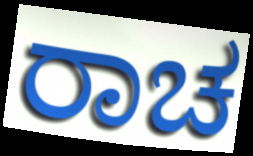
ರಾಚ